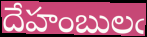
దేహంబులఁ